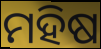
ମହିଷ